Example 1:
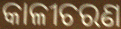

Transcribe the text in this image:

କାଳୀଚରଣ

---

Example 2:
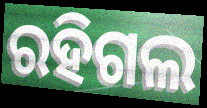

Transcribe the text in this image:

ରହିଗଲ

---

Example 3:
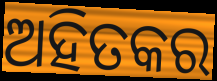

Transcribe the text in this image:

ଅହିତକର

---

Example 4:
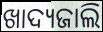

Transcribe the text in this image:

ଖାଦ୍ୟଜାଲି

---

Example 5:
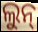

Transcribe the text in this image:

ଲୁନ୍